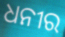
ଧନୀର